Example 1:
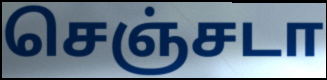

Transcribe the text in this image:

செஞ்சடா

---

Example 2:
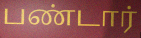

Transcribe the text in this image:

பண்டார்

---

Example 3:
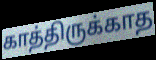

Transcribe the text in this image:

காத்திருக்காத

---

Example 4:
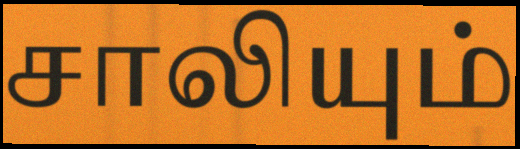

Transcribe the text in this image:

சாலியும்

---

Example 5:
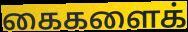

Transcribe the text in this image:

கைகளைக்